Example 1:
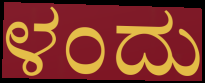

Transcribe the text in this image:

ಳಂದು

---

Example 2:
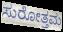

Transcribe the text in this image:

ಸುರೋತ್ತಮ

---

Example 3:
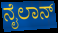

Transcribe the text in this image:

ನೈಲಾನ್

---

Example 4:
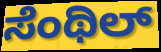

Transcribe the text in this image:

ಸೆಂಥಿಲ್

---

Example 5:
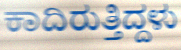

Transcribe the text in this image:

ಕಾದಿರುತ್ತಿದ್ದಳು